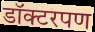
डॉक्टरपण